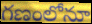
గణంలోనూ